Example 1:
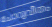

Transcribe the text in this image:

ചോറുവീതം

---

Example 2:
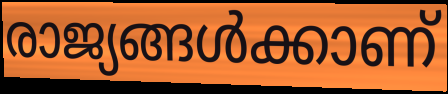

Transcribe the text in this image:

രാജ്യങ്ങൾക്കാണ്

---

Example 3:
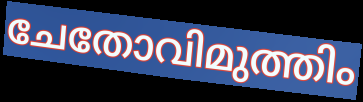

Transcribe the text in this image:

ചേതോവിമുത്തിം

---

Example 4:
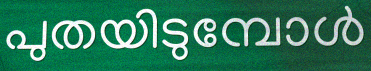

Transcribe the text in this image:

പുതയിടുമ്പോൾ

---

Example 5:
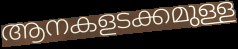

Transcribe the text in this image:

ആനകളടക്കമുള്ള